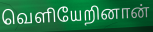
வெளியேறினான்